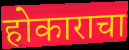
होकाराचा